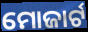
ମୋଜାର୍ଟ